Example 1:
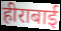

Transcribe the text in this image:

हीराबाई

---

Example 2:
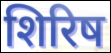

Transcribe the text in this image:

शिरिष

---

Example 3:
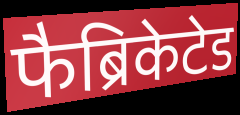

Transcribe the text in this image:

फैब्रिकेटेड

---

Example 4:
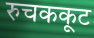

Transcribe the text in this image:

रुचककूट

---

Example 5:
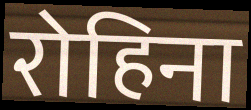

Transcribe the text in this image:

रोहिना